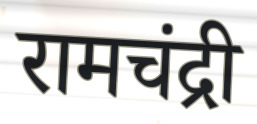
रामचंद्री